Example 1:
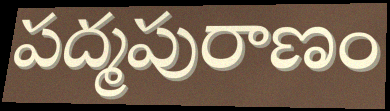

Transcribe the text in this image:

పద్మపురాణం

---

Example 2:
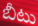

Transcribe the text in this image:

బీటు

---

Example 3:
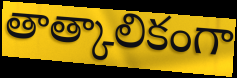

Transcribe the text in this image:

తాత్కాలికంగా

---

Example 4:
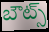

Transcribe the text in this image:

బౌట్స్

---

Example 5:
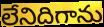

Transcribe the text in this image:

లేనిదిగాను